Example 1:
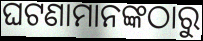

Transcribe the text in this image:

ଘଟଣାମାନଙ୍କଠାରୁ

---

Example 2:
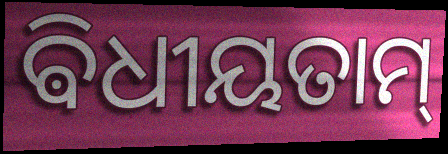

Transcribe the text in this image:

ଵିଧୀୟତାମ୍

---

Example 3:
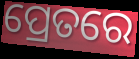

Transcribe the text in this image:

ପ୍ରେତରେ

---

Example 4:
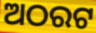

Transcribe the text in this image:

ଅଠରଟ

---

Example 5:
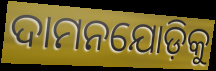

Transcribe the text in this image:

ଦାମନଯୋଡ଼ିକୁ